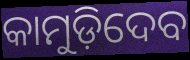
କାମୁଡ଼ିଦେବ